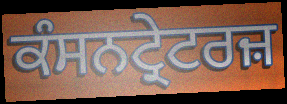
ਕੰਸਨਟ੍ਰੇਟਰਜ਼